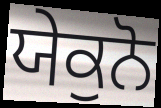
ਯੇਕੁਨੋ